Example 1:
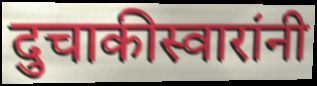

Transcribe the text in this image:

दुचाकीस्वारांनी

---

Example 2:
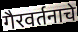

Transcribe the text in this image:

गैरवर्तनाचे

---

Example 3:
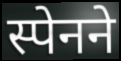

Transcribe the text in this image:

स्पेनने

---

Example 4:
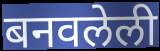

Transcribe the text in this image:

बनवलेली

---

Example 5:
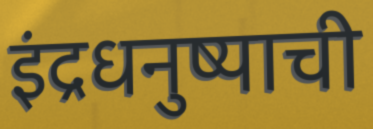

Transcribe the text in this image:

इंद्रधनुष्याची